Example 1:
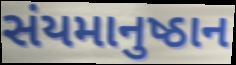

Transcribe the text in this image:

સંયમાનુષ્ઠાન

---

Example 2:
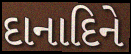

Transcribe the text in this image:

દાનાદિને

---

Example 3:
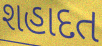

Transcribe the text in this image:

શહાદત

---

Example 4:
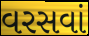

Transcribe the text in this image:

વરસવાં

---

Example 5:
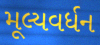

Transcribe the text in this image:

મૂલ્યવર્ધન